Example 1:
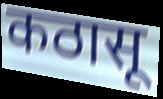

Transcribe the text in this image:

कठासू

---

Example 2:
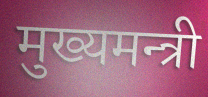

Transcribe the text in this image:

मुख्यमन्त्री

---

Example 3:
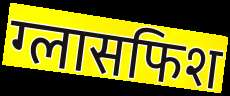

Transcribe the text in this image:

ग्लासफिश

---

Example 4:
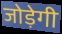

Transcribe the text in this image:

जोड़ेगी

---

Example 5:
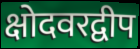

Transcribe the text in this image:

क्षोदवरद्वीप